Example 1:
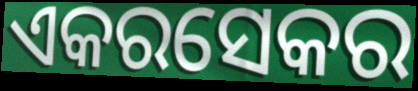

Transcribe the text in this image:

ଏକରସେକର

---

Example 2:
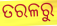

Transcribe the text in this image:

ତରଳରୁ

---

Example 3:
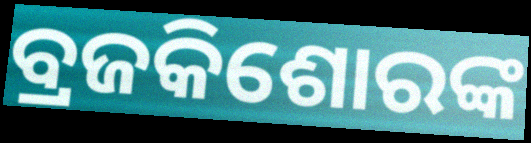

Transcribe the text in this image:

ବ୍ରଜକିଶୋରଙ୍କ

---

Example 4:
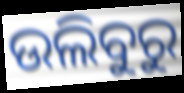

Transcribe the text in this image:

ଉଲିବୁରୁ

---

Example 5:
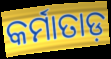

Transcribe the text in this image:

କର୍ମାତାଡ଼